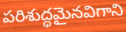
పరిశుద్ధమైనవిగాని